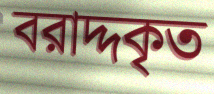
বরাদ্দকৃত